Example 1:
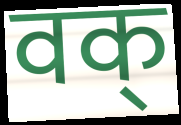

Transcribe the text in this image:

वक्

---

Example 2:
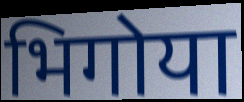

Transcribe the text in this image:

भिगोया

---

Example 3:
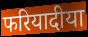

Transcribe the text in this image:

फरियादीया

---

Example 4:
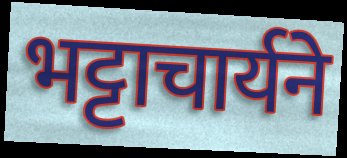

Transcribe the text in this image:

भट्टाचार्यने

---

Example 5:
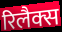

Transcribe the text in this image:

रिलैक्‍स